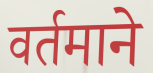
वर्तमाने